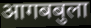
आगबबुला